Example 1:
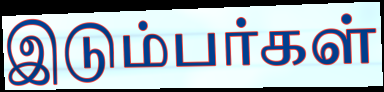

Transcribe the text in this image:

இடும்பர்கள்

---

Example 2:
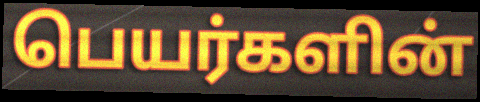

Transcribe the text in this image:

பெயர்களின்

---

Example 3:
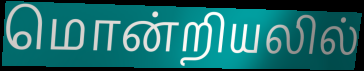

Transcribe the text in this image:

மொன்றியலில்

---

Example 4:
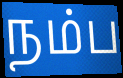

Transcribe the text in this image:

நம்ப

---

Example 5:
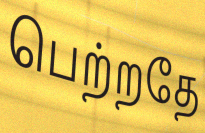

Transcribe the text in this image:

பெற்றதே